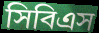
সিবিএস